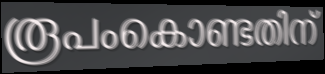
രൂപംകൊണ്ടതിന്